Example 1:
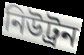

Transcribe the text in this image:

নিউট্ৰন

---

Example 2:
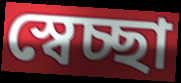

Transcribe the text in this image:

স্বেচ্ছা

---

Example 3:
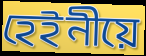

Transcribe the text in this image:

হেইনীয়ে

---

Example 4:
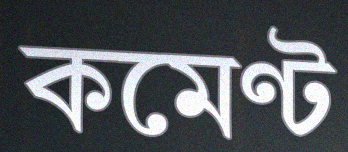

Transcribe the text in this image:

কমেণ্ট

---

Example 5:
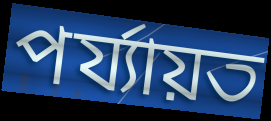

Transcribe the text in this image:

পৰ্য্যায়ত